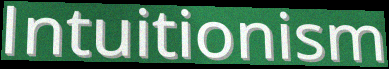
Intuitionism